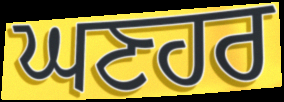
ਘਣਹਰ